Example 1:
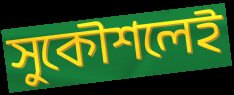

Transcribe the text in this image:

সুকৌশলেই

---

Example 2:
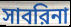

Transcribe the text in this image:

সাবরিনা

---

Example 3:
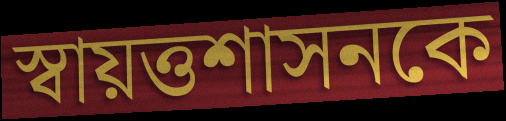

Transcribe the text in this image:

স্বায়ত্তশাসনকে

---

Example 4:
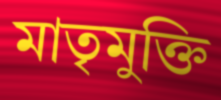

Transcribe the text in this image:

মাতৃমুক্তি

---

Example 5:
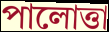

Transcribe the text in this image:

পালোত্তা